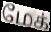
மேக்